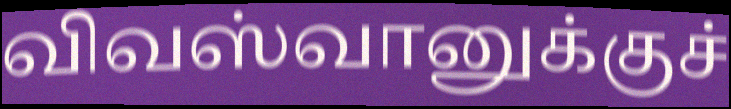
விவஸ்வானுக்குச்